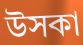
উসকা